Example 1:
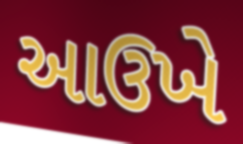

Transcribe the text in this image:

આઉખે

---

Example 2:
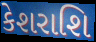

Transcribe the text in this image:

કેશરાશિ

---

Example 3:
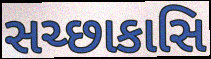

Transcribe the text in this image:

સચ્છાકાસિ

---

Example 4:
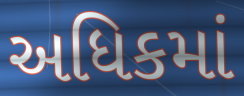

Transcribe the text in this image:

અધિકમાં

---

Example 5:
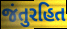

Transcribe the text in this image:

જંતુરહિત